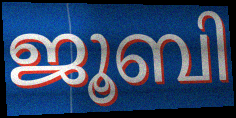
ജൂബി